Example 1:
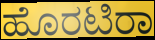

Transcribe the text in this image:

ಹೊರಟಿರಾ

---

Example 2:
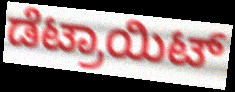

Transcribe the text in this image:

ಡೆಟ್ರಾಯಿಟ್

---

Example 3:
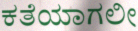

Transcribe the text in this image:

ಕತೆಯಾಗಲೀ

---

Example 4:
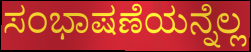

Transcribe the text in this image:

ಸಂಭಾಷಣೆಯನ್ನೆಲ್ಲ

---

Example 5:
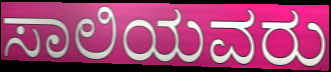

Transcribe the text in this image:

ಸಾಲಿಯವರು